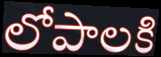
లోపాలకి